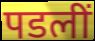
पडलीं